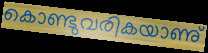
കൊണ്ടുവരികയാണു്